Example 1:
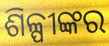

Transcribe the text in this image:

ଶିଳ୍ପୀଙ୍କର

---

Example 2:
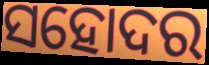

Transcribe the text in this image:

ସହୋଦର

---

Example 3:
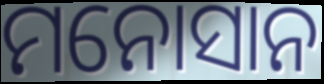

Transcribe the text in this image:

ମନୋସାନ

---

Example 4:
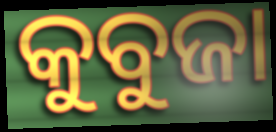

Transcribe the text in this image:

କୁବୁଜା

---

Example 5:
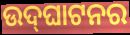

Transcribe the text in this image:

ଉଦ୍‌ଘାଟନର